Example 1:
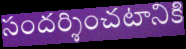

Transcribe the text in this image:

సందర్శించటానికి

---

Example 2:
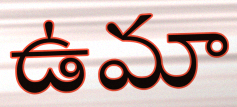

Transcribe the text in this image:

ఉమా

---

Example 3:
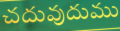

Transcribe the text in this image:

చదువుదుము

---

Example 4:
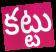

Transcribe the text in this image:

కట్టు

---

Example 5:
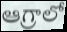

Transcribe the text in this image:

ఆగ్రాలో